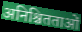
अनिश्चितताओं